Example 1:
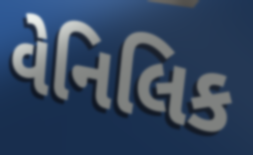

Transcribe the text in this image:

વેનિલિક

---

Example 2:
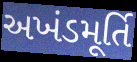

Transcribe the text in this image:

અખંડમૂર્તિ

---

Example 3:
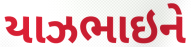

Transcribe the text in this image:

યાઝભાઇને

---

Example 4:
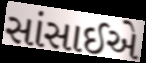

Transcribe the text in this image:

સાંસાઈએ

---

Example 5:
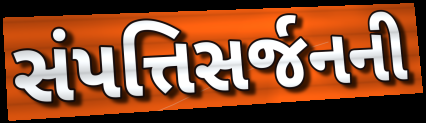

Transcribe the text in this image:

સંપત્તિસર્જનની